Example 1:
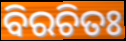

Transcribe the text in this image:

ବିରଚିତଃ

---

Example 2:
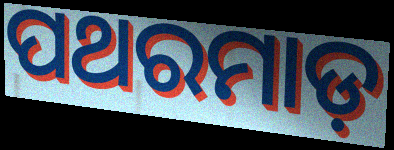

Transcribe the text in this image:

ପଥରମାଡ଼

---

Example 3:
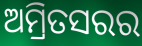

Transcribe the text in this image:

ଅମ୍ରିତସରର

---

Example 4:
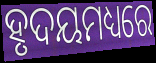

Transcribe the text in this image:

ହୃଦୟମଧ୍ୟରେ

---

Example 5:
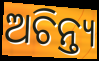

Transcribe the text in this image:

ଅଚିନ୍ତ୍ଯ